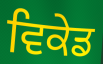
ਵਿਕੇਡ